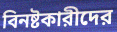
বিনষ্টকারীদের